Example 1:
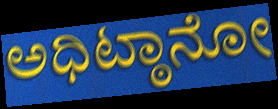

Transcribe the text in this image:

ಅಧಿಟ್ಠಾನೋ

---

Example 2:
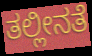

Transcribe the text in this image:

ತಲ್ಲೀನತೆ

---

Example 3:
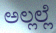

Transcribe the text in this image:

ಅಲ್ಲಲ್ಲೆ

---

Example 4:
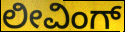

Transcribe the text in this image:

ಲೀವಿಂಗ್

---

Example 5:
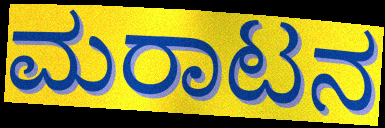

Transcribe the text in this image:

ಮರಾಟನ